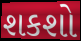
શકશો